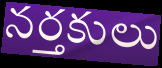
నర్తకులు